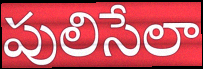
పులిసేలా